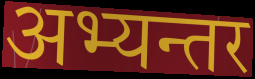
अभ्यन्तर